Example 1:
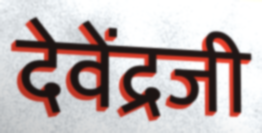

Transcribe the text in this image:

देवेंद्रजी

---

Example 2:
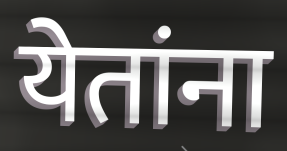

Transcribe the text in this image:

येतांना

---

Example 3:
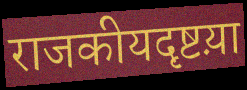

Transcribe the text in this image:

राजकीयदृष्टय़ा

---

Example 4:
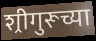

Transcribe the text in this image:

श्रीगुरूच्या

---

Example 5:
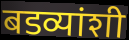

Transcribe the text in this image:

बडव्यांशी